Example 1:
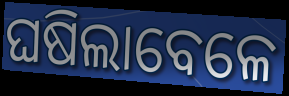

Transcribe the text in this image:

ଘଷିଲାବେଳେ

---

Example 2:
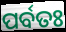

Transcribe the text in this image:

ପର୍ବତଃ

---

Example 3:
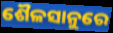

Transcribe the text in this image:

ଶୈଳସାନୁରେ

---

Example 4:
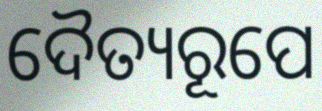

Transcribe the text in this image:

ଦୈତ୍ୟରୂପେ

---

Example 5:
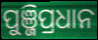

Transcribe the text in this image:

ପୁଞ୍ଜିପ୍ରଧାନ